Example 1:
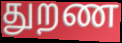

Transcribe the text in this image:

துறண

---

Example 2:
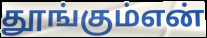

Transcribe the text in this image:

தூங்கும்என்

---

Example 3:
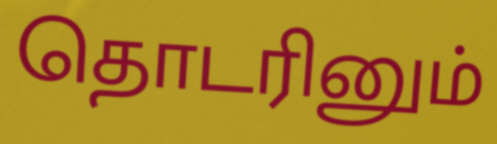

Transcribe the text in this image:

தொடரினும்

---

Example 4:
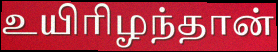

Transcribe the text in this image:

உயிரிழந்தான்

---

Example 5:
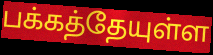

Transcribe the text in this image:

பக்கத்தேயுள்ள